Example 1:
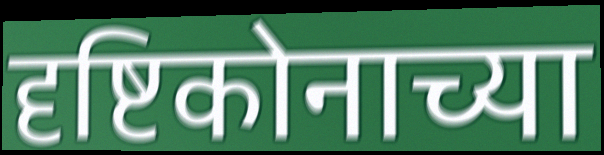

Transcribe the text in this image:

दृष्टिकोनाच्या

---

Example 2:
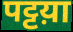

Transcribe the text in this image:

पट्टय़ा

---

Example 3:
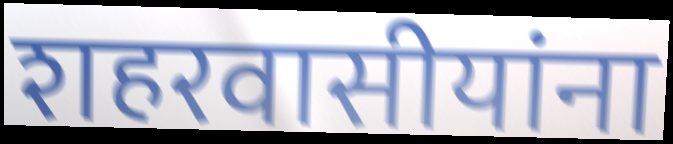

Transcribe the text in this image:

शहरवासीयांना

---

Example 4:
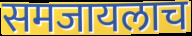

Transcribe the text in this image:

समजायलाच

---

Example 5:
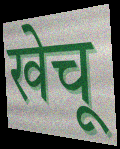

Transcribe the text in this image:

खेचू